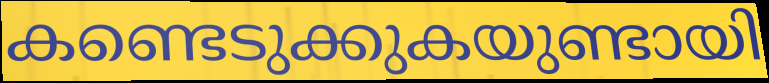
കണ്ടെടുക്കുകയുണ്ടായി